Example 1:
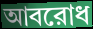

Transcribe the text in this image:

আবরোধ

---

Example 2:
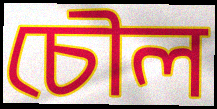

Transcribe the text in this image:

চৌল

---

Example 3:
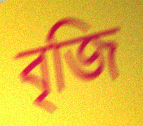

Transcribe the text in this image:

বৃজি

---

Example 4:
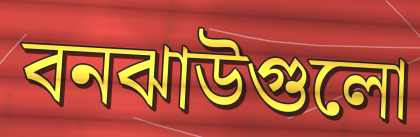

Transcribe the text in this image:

বনঝাউগুলো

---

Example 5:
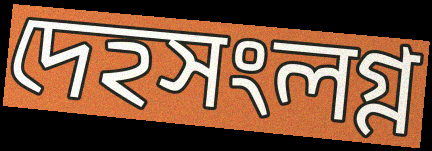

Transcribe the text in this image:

দেহসংলগ্ন